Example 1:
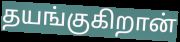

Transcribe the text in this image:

தயங்குகிறான்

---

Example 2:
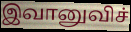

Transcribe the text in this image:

இவானுவிச்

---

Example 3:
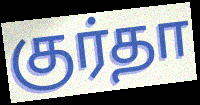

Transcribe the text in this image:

குர்தா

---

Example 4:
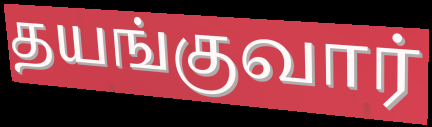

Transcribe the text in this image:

தயங்குவார்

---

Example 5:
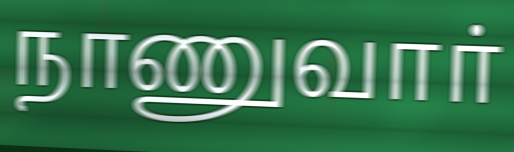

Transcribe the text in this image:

நாணுவார்